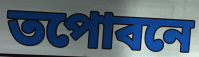
তপোবনে